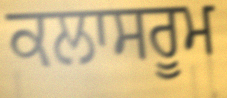
ਕਲਾਸਰੂਮ